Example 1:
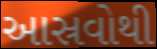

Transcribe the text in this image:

આસ્રવોથી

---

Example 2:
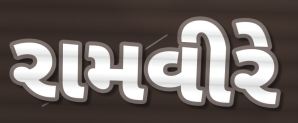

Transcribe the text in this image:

રામવીરે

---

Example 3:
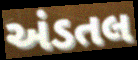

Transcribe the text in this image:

અંડતલ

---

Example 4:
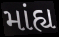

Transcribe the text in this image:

માંહ્ય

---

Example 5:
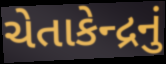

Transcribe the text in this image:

ચેતાકેન્દ્રનું